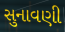
સુનાવણી